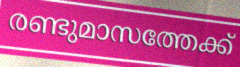
രണ്ടുമാസത്തേക്ക്